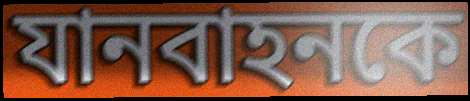
যানবাহনকে